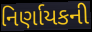
નિર્ણાયકની